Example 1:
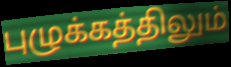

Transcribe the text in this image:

புழுக்கத்திலும்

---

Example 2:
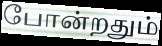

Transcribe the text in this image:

போன்றதும்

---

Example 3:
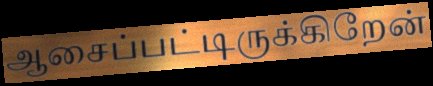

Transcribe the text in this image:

ஆசைப்பட்டிருக்கிறேன்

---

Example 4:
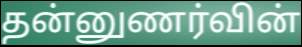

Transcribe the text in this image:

தன்னுணர்வின்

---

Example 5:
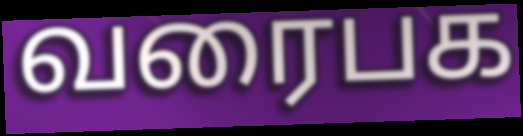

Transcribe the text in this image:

வரைபக